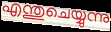
എന്തുചെയ്യുന്നു